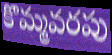
కొమ్మవరపు